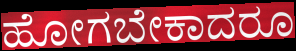
ಹೋಗಬೇಕಾದರೂ